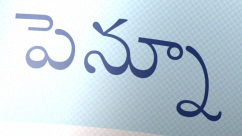
పెన్నూ